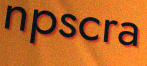
npscra